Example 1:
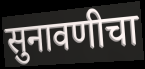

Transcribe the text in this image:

सुनावणीचा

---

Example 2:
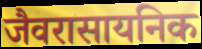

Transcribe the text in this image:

जैवरासायनिक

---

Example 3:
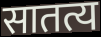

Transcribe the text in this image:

सातत्य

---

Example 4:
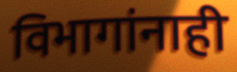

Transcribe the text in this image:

विभागांनाही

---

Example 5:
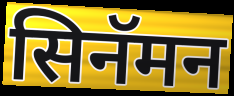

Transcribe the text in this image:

सिनॅमन